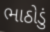
ભાઠોડું